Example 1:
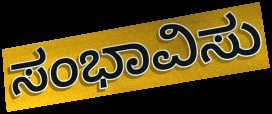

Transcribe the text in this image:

ಸಂಭಾವಿಸು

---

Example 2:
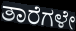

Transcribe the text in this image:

ತಾರೆಗಳೇ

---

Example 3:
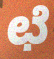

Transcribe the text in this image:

ಛೆ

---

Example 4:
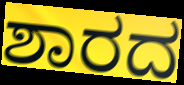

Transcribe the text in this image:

ಶಾರದ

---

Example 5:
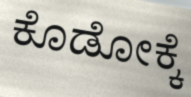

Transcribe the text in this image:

ಕೊಡೋಕ್ಕೆ